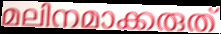
മലിനമാക്കരുത്